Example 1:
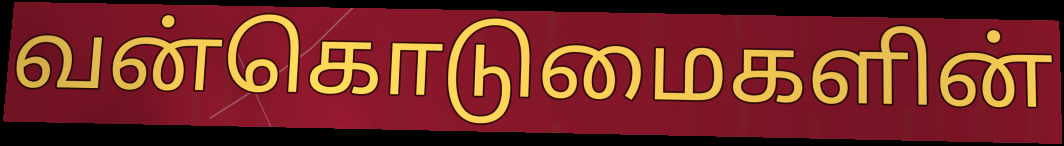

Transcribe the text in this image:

வன்கொடுமைகளின்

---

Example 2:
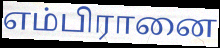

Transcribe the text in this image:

எம்பிரானை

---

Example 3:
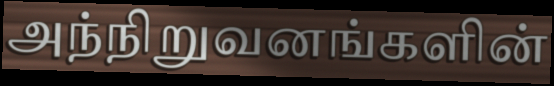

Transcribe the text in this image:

அந்நிறுவனங்களின்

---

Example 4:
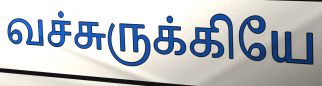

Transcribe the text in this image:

வச்சுருக்கியே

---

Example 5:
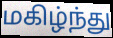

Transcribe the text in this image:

மகிழ்ந்து